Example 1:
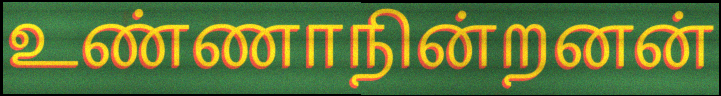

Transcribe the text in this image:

உண்ணாநின்றனன்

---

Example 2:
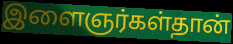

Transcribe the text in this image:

இளைஞர்கள்தான்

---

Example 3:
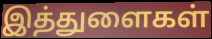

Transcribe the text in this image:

இத்துளைகள்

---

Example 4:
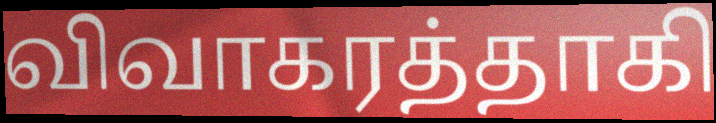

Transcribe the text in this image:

விவாகரத்தாகி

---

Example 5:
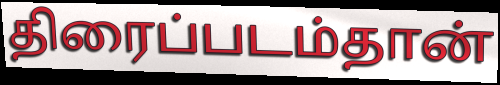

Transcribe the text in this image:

திரைப்படம்தான்